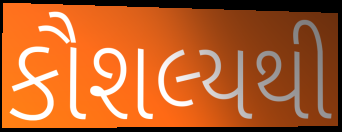
કૌશલ્યથી